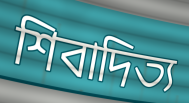
শিবাদিত্য